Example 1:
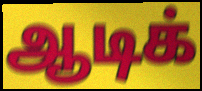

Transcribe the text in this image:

ஆடிக்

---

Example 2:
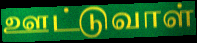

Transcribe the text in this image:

ஊட்டுவாள்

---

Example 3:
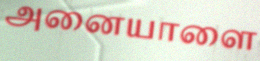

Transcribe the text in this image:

அனையாளை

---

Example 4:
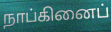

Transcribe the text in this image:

நாப்கினைப்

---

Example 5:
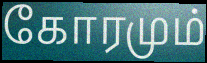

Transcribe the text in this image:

கோரமும்